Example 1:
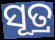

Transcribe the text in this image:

ସୂତ୍ର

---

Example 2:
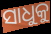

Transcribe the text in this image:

ସାଧୁକୁ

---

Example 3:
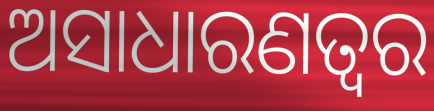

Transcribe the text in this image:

ଅସାଧାରଣତ୍ୱର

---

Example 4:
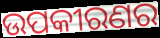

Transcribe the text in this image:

ଉପକୀରଣର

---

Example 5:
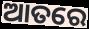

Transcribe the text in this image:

ଆତରେ